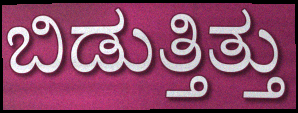
ಬಿಡುತ್ತಿತ್ತು